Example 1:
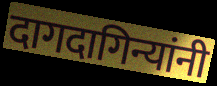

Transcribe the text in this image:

दागदागिन्यांनी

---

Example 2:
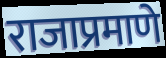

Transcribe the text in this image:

राजाप्रमाणे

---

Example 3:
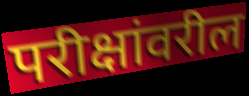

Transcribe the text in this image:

परीक्षांवरील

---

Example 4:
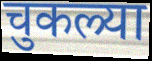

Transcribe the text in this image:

चुकल्या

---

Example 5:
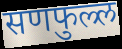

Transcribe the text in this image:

सणफुल्ल